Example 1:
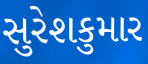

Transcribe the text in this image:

સુરેશકુમાર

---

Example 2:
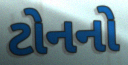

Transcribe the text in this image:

ટોનનો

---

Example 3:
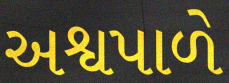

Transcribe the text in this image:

અશ્વપાળે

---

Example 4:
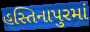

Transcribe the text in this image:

હસ્તિનાપુરમાં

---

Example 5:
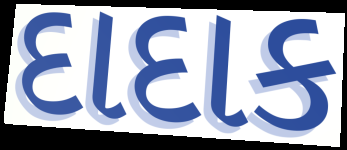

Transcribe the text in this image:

દાદાક